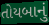
તોયબાનું